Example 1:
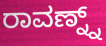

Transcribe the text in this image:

ರಾವಣ್ನ್ನ್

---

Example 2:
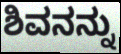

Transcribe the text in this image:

ಶಿವನನ್ನು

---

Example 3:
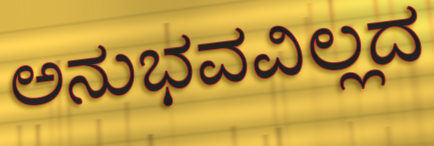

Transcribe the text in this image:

ಅನುಭವವಿಲ್ಲದ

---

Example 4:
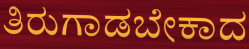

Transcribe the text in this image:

ತಿರುಗಾಡಬೇಕಾದ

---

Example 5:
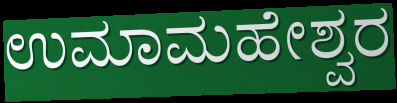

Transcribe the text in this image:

ಉಮಾಮಹೇಶ್ವರ